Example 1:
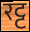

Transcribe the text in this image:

रट्ट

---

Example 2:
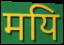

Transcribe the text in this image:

मयि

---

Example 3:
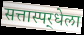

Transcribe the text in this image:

सत्तास्पर्धेला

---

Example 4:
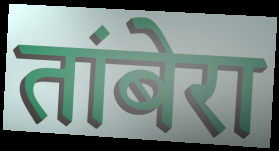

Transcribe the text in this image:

तांबेरा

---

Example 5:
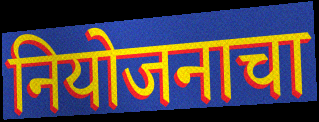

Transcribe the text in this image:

नियोजनाचा